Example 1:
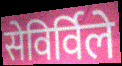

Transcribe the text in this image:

सेविर्विले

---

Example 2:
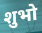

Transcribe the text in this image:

शुभो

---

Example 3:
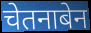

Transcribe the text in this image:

चेतनाबेन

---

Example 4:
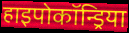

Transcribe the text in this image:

हाइपोकॉन्ड्रिया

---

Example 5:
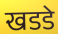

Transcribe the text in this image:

खडडे